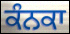
ਕੰਨਕਾ